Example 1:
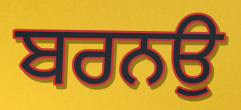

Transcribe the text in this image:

ਬਰਨਉ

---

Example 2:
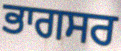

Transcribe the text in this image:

ਭਾਗਸਰ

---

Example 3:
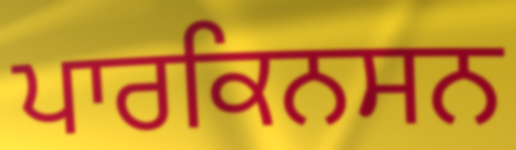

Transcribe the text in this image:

ਪਾਰਕਿਨਸਨ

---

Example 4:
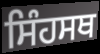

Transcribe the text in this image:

ਸਿੰਹਸਥ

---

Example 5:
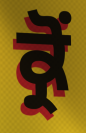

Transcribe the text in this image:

ਕ੍ਰੋਂ